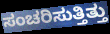
ಸಂಚರಿಸುತ್ತಿತ್ತು